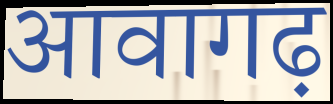
आवागढ़